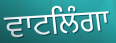
ਵਾਟਲਿੰਗਾ